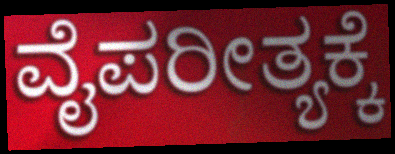
ವೈಪರೀತ್ಯಕ್ಕೆ